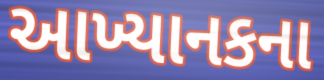
આખ્યાનકના